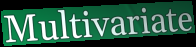
Multivariate